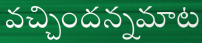
వచ్చిందన్నమాట